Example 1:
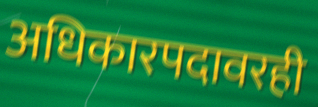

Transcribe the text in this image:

अधिकारपदावरही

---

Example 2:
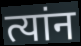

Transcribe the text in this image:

त्यांन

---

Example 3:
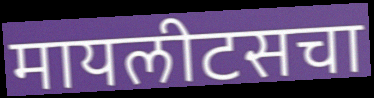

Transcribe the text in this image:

मायलीटसचा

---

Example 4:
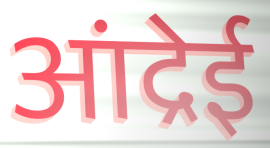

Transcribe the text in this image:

आंद्रेई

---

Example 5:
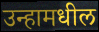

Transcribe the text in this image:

उन्हामधील